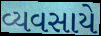
વ્યવસાયે